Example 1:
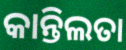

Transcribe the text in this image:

କାନ୍ତିଲତା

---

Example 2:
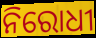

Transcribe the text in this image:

ନିରୋଧୀ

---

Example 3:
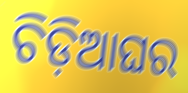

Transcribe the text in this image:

ଚିଡ଼ିଆଘର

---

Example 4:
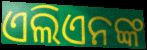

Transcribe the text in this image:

ଏଲିଏନଙ୍କ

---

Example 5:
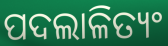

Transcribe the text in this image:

ପଦଲାଳିତ୍ୟଂ